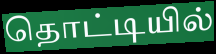
தொட்டியில்